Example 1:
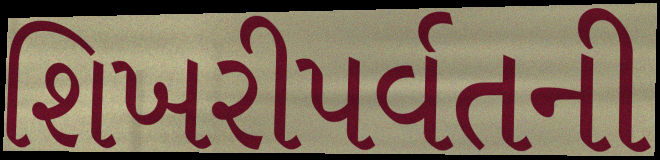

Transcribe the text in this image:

શિખરીપર્વતની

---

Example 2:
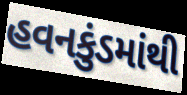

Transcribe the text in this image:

હવનકુંડમાંથી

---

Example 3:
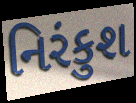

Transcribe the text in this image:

નિરંકુશ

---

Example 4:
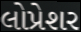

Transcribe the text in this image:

લોપ્રેશર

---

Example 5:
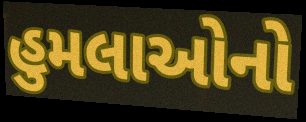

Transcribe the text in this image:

હુમલાઓનો